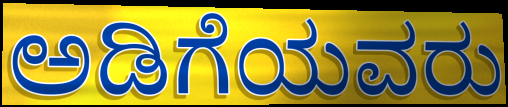
ಅಡಿಗೆಯವರು